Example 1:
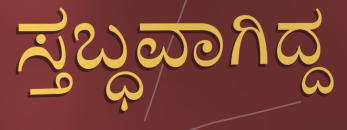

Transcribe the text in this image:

ಸ್ತಬ್ಧವಾಗಿದ್ದ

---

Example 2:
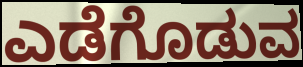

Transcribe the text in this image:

ಎಡೆಗೊಡುವ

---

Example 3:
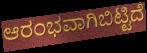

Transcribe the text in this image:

ಆರಂಭವಾಗಿಬಿಟ್ಟಿದೆ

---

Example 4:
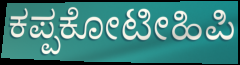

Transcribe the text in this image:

ಕಪ್ಪಕೋಟೀಹಿಪಿ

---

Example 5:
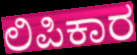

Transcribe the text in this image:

ಲಿಪಿಕಾರ